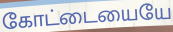
கோட்டையையே